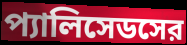
প্যালিসেডসের